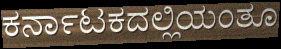
ಕರ್ನಾಟಕದಲ್ಲಿಯಂತೂ